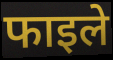
फाइले